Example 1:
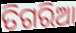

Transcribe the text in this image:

ତିଗରିଆ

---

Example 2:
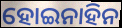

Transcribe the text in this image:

ହୋଇନାହିନ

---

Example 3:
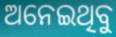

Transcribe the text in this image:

ଅନେଇଥିବୁ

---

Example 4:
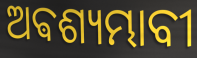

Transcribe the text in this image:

ଅଵଶ୍ୟମ୍ଭାବୀ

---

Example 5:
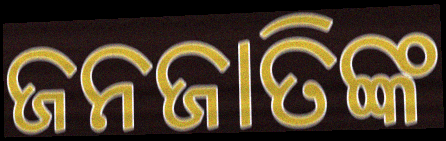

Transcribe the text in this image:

ଜନଜାତିଙ୍କ